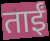
ताईं